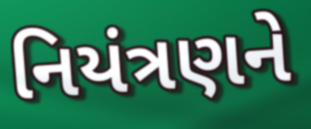
નિયંત્રણને